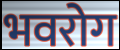
भवरोग